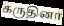
கருதினா